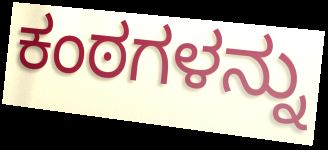
ಕಂಠಗಳನ್ನು